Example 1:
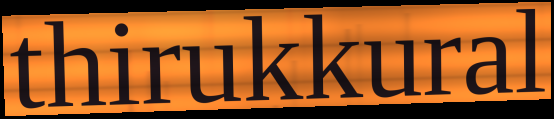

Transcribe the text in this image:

thirukkural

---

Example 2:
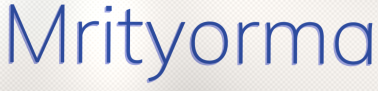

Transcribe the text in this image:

Mrityorma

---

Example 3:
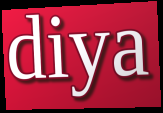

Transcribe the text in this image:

diya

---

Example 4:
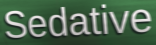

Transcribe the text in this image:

Sedative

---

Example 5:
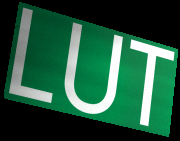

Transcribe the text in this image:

LUT